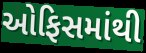
ઓફિસમાંથી